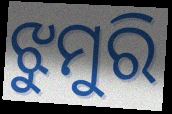
ଝୁମୁରି